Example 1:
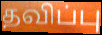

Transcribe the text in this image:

தவிப்பு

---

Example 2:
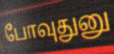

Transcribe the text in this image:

போவுதுனு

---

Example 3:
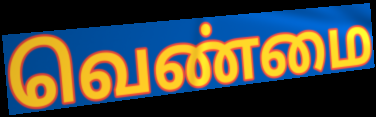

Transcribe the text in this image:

வெண்மை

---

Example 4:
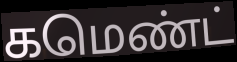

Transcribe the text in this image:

கமெண்ட்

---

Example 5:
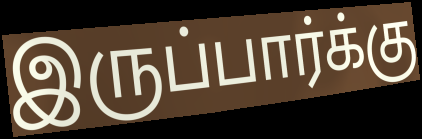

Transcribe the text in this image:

இருப்பார்க்கு